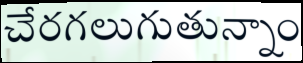
చేరగలుగుతున్నాం